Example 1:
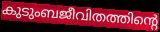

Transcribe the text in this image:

കുടുംബജീവിതത്തിന്റെ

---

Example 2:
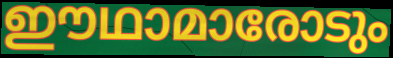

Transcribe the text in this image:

ഈഥാമാരോടും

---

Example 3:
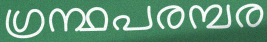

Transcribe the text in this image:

ഗ്രന്ഥപരമ്പര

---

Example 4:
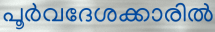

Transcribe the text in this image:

പൂർവദേശക്കാരിൽ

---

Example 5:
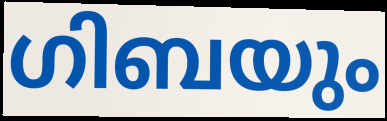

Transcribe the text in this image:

ഗിബയും